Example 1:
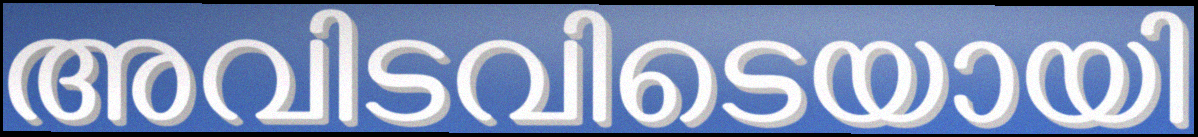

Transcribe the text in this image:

അവിടവിടെയായി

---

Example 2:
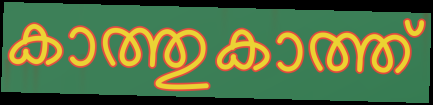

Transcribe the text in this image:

കാത്തുകാത്ത്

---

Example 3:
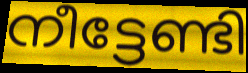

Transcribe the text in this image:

നീട്ടേണ്ടി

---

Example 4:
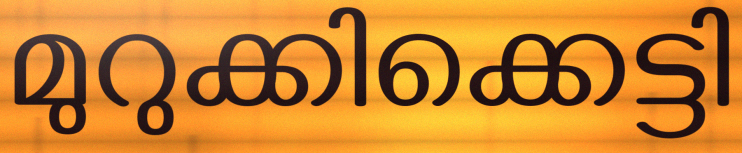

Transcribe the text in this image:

മുറുക്കിക്കെട്ടി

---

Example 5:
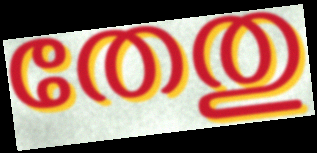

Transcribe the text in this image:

തേതു